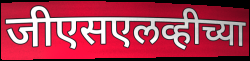
जीएसएलव्हीच्या